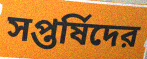
সপ্তর্ষিদের